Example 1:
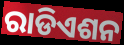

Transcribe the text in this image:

ରାଡିଏଶନ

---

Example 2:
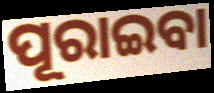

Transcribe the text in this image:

ପୂରାଇବା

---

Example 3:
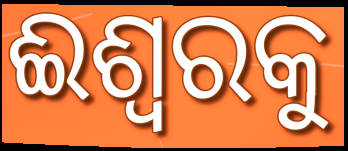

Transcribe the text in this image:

ଈଶ୍ୱରକୁ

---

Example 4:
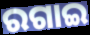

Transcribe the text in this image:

ରଗାଇ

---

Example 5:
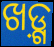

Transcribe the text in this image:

ଖଡ଼୍ଗ